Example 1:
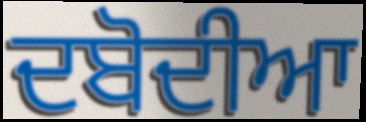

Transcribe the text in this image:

ਦਬੋਦੀਆ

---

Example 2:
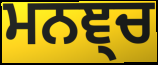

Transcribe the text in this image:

ਮਨਞ੍ਚ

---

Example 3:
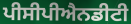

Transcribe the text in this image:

ਪੀਸੀਪੀਐਨਡੀਟੀ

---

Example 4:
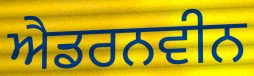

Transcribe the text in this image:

ਐਡਰਨਵੀਨ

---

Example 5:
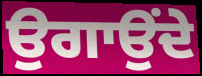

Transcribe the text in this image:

ਉਗਾਉਂਦੇ